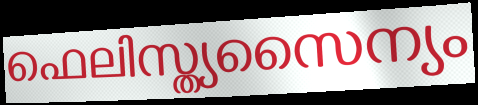
ഫെലിസ്ത്യസൈന്യം